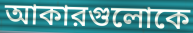
আকারগুলোকে